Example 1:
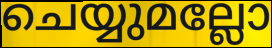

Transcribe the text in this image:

ചെയ്യുമല്ലോ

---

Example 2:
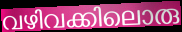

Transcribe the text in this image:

വഴിവക്കിലൊരു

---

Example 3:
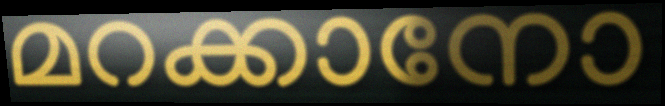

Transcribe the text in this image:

മറക്കാനോ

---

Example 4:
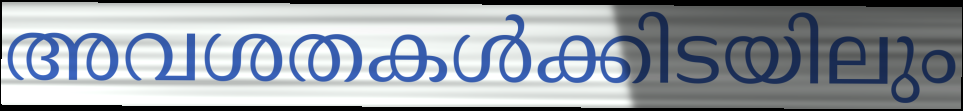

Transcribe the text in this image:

അവശതകൾക്കിടയിലും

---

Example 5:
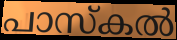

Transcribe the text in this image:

പാസ്കൽ